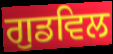
ਗੁਡਵਿਲ